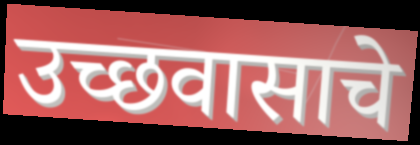
उच्छवासाचे